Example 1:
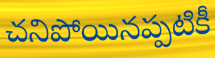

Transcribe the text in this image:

చనిపోయినప్పటికీ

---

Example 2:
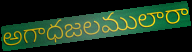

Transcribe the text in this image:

అగాధజలములారా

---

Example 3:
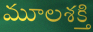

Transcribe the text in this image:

మూలశక్తి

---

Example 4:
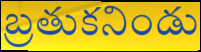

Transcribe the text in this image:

బ్రతుకనిండు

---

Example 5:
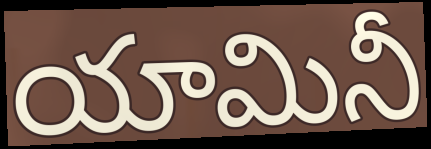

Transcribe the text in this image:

యామినీ